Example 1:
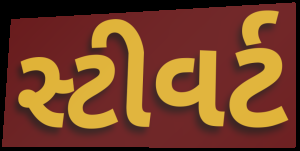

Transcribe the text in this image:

સ્ટીવર્ટ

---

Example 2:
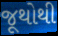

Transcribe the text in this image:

જૂથોથી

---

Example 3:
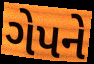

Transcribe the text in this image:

ગેપને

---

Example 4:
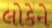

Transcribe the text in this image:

લોકેને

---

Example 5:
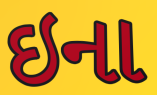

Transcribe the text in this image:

ઇના